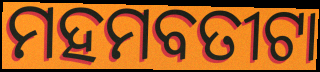
ମହମବତୀଟା